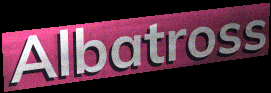
Albatross